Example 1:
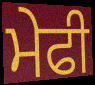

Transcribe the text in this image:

ਮੇਫੀ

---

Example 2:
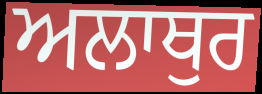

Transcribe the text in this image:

ਅਲਾਥੁਰ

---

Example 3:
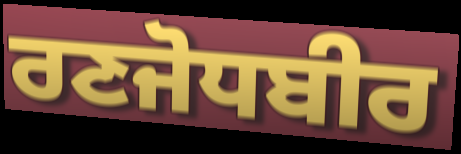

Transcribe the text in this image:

ਰਣਜੋਧਬੀਰ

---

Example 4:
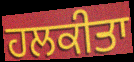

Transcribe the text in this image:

ਹਲਕੀਤਾ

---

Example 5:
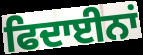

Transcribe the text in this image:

ਫਿਦਾਈਨਾਂ